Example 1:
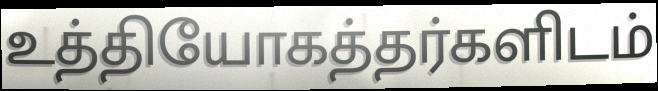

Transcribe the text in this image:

உத்தியோகத்தர்களிடம்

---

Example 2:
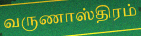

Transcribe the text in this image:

வருணாஸ்திரம்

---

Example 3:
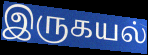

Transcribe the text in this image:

இருகயல்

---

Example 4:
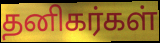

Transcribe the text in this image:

தனிகர்கள்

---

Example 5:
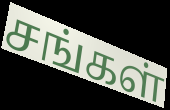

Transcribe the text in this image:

சங்கள்